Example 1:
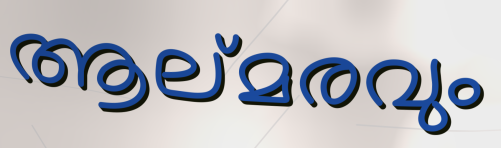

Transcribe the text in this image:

ആല്മരവും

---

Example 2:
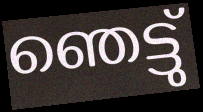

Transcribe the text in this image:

ഞെട്ടു്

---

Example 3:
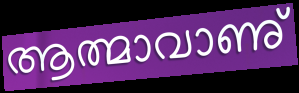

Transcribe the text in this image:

ആത്മാവാണു്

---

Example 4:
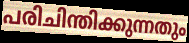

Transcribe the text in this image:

പരിചിന്തിക്കുന്നതും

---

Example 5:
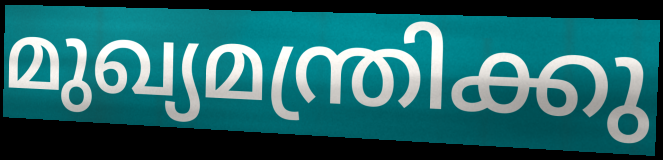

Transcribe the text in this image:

മുഖ്യമന്ത്രിക്കു